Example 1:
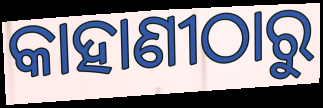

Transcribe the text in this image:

କାହାଣୀଠାରୁ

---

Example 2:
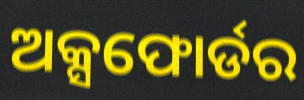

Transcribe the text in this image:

ଅକ୍ସଫୋର୍ଡର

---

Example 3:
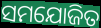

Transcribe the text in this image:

ସମଯୋଜିତ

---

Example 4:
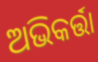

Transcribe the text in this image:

ଅଭିକର୍ତ୍ତା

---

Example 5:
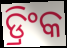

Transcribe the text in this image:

ଡ୍ରିଂକ